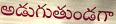
అడుగుతుండగా